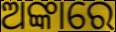
ଅଙ୍କାରେ